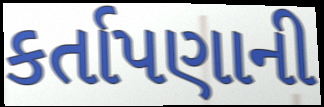
કર્તાપણાની